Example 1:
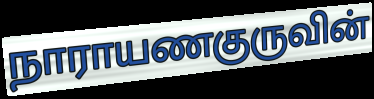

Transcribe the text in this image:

நாராயணகுருவின்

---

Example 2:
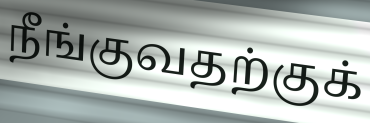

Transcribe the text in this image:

நீங்குவதற்குக்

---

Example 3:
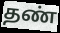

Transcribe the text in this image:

தண்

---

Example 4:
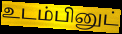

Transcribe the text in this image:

உடம்பினுட்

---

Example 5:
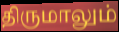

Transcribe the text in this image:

திருமாலும்